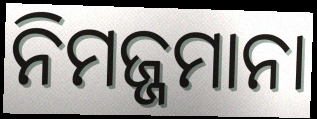
ନିମଜ୍ଜମାନା